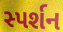
સ્પર્શન